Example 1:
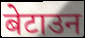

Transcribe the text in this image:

बेटाउन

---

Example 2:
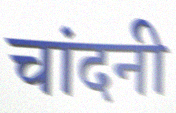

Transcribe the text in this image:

चांदनी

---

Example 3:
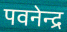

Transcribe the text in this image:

पवनेन्द्र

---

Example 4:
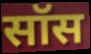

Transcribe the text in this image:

सॉस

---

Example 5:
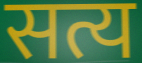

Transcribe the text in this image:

सत्य